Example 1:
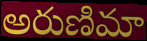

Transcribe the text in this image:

అరుణిమా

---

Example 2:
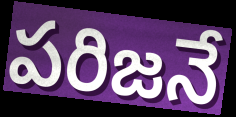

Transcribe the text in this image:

పరిజనే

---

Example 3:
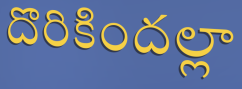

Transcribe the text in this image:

దొరికిందల్లా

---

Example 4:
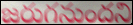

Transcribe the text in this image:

జరుగనుందని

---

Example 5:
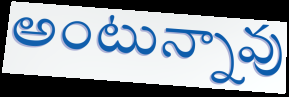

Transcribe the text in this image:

అంటున్నావు